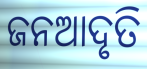
ଜନଆଦୃତି